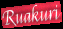
Ruakuri